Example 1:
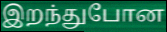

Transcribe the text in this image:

இறந்துபோன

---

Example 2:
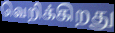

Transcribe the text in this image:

வெறிக்கிறது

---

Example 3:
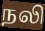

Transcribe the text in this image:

நலி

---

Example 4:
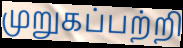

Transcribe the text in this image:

முறுகப்பற்றி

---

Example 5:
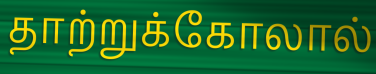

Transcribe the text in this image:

தாற்றுக்கோலால்